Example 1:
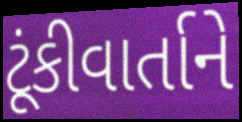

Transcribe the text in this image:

ટૂંકીવાર્તાને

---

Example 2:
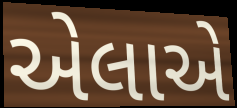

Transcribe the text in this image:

એલાએ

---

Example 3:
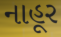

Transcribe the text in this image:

નાહૂર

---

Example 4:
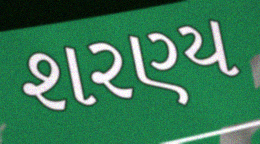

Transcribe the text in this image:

શરણ્ય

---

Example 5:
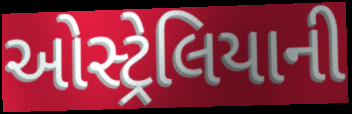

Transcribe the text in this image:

ઓસ્ટ્રેલિયાની